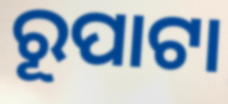
ରୂପାଟା